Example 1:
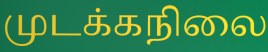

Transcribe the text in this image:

முடக்கநிலை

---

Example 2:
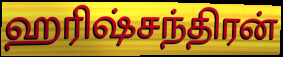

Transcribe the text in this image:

ஹரிஷ்சந்திரன்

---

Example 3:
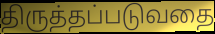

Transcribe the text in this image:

திருத்தப்படுவதை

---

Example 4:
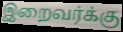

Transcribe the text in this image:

இறைவர்க்கு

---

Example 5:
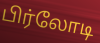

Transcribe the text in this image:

பிர்லோடி